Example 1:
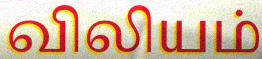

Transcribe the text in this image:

விலியம்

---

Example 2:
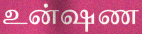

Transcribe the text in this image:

உன்ஷண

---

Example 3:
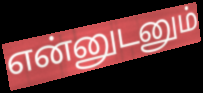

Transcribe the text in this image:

என்னுடனும்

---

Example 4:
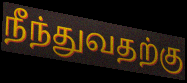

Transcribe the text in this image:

நீந்துவதற்கு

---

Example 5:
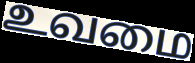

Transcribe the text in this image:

உவமை